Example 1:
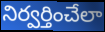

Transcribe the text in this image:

నిర్వర్తించేలా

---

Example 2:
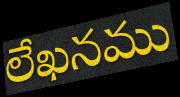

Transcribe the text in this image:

లేఖనము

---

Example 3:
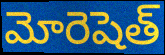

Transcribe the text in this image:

మోరెషెత్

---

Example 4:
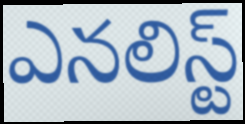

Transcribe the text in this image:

ఎనలిస్ట్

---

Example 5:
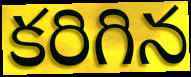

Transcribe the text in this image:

కరిగిన